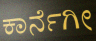
ಕಾರ್ನೆಗೀ